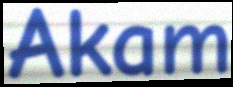
Akam